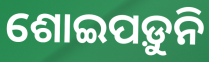
ଶୋଇପଡ଼ୁନି